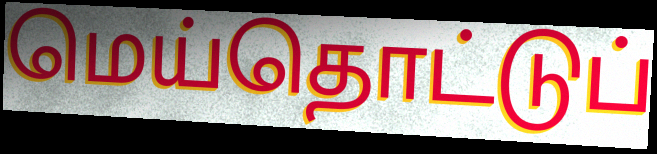
மெய்தொட்டுப்